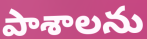
పాశాలను